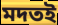
মদতই